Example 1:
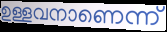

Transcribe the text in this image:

ഉള്ളവനാണെന്ന്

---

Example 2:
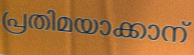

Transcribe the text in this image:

പ്രതിമയാക്കാന്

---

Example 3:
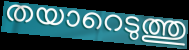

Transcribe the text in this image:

തയാറെടുത്തു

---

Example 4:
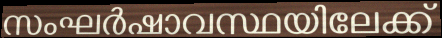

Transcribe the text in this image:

സംഘർഷാവസ്ഥയിലേക്ക്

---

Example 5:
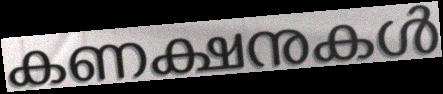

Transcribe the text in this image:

കണക്ഷനുകൾ